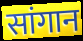
सांगान